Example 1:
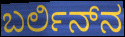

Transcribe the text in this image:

ಬರ್ಲಿನ್‍ನ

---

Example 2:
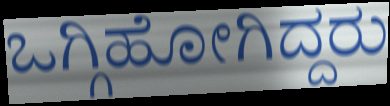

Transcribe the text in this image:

ಒಗ್ಗಿಹೋಗಿದ್ದರು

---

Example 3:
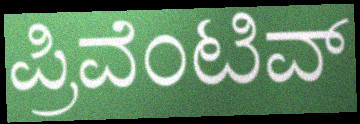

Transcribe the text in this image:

ಪ್ರಿವೆಂಟಿವ್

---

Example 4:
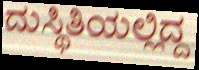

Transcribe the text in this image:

ದುಸ್ಥಿತಿಯಲ್ಲಿದ್ದ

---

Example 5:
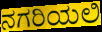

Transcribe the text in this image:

ನಗರಿಯಲಿ